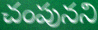
చంపునని